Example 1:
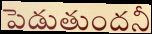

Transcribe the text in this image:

పెడుతుందనీ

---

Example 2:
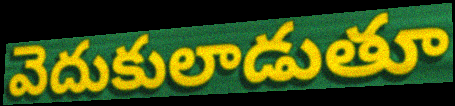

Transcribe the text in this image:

వెదుకులాడుతూ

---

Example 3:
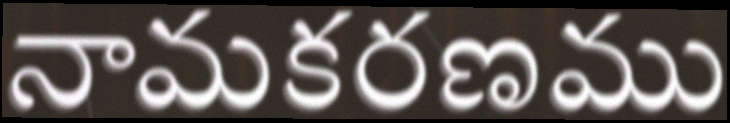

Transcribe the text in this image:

నామకరణము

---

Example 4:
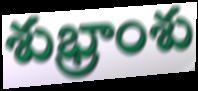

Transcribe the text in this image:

శుభ్రాంశు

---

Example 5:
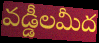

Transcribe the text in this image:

వడ్డీలమీద